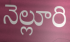
నెల్లూరి